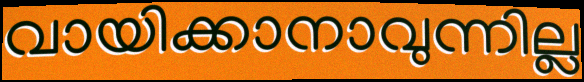
വായിക്കാനാവുന്നില്ല